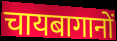
चायबागानों